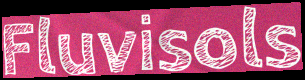
Fluvisols